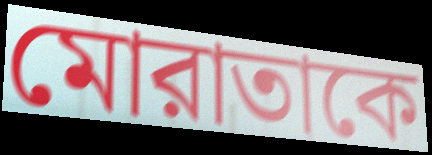
মোরাতাকে